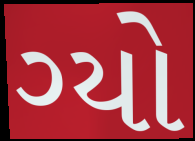
ગ્યો